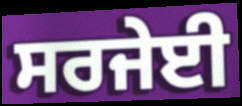
ਸਰਜੇਈ